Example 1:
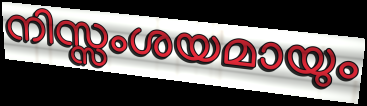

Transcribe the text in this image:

നിസ്സംശയമായും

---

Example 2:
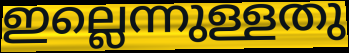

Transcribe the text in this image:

ഇല്ലെന്നുള്ളതു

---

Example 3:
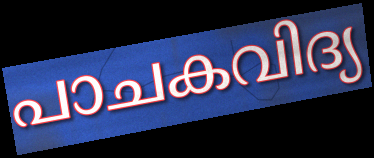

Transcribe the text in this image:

പാചകവിദ്യ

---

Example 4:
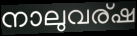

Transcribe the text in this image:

നാലുവര്ഷ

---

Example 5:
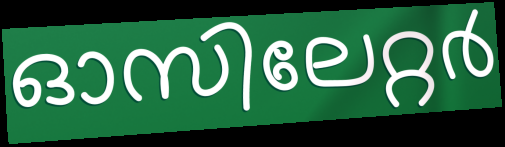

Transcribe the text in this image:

ഓസിലേറ്റർ